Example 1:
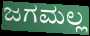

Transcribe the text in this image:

ಜಗಮಲ್ಲ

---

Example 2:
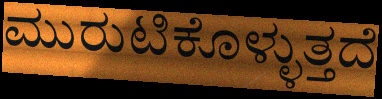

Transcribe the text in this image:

ಮುರುಟಿಕೊಳ್ಳುತ್ತದೆ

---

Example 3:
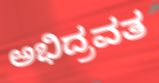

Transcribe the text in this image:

ಅಭಿದ್ರವತ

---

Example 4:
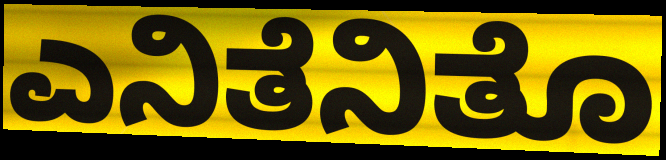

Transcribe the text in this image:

ಎನಿತೆನಿತೊ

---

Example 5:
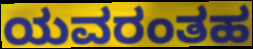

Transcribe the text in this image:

ಯವರಂತಹ